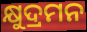
କ୍ଷୁଦ୍ରମନ